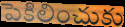
పెకిలించుకు